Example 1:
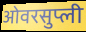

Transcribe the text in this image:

ओवरसुप्ली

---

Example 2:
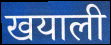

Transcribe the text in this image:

खयाली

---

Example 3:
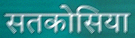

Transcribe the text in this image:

सतकोसिया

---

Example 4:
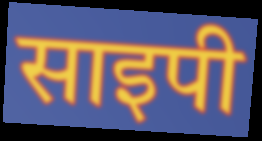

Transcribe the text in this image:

साइपी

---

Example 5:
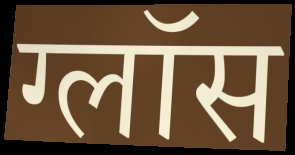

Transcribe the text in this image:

ग्लॉस